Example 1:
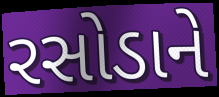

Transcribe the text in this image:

રસોડાને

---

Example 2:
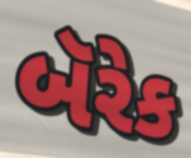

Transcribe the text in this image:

બૅરેક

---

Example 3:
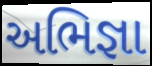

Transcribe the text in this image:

અભિજ્ઞા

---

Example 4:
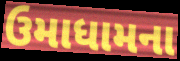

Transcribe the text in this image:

ઉમાધામના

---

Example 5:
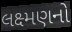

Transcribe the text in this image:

લક્ષ્મણનો